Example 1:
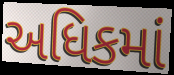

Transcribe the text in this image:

અધિકમાં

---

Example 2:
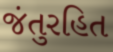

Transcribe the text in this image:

જંતુરહિત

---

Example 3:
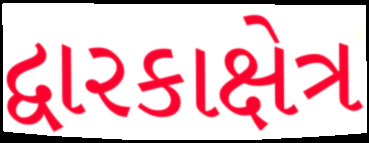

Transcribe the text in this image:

દ્વારકાક્ષેત્ર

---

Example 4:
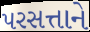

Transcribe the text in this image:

પરસત્તાને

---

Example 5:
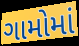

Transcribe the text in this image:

ગામોમાં